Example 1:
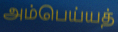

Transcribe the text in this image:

அம்பெய்யத்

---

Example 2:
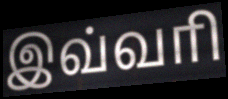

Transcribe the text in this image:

இவ்வரி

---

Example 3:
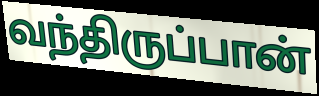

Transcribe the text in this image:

வந்திருப்பான்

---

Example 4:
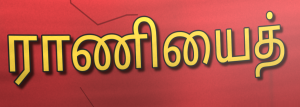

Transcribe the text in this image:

ராணியைத்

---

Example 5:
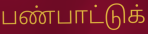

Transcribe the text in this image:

பண்பாட்டுக்